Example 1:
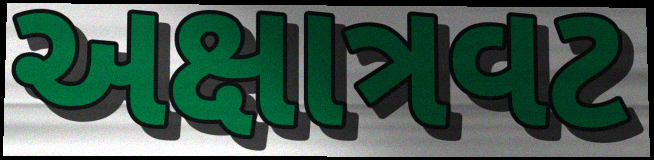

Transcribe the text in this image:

અક્ષાત્રવટ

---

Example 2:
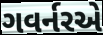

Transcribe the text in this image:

ગવર્નરએ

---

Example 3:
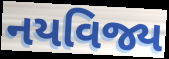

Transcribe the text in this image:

નયવિજ્ય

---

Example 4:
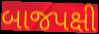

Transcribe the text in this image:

બાજપક્ષી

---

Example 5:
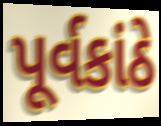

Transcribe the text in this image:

પૂર્વકાંઠે